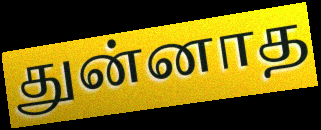
துன்னாத